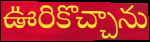
ఊరికొచ్చాను